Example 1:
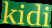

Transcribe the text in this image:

kidi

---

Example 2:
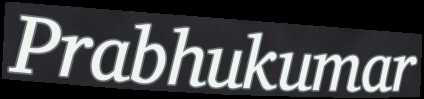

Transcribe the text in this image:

Prabhukumar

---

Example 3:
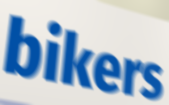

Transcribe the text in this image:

bikers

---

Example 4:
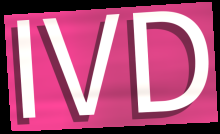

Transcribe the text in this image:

IVD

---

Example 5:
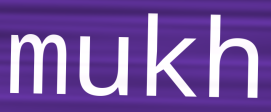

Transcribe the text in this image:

mukh